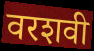
वरशवी